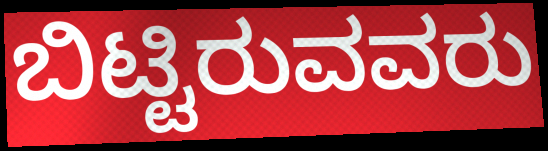
ಬಿಟ್ಟಿರುವವರು